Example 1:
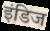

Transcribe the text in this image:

इंडिज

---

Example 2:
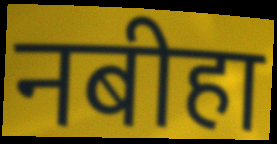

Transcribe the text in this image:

नबीहा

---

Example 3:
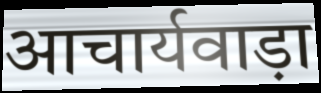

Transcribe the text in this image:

आचार्यवाड़ा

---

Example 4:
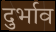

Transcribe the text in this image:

दुर्भाव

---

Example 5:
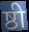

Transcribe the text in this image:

ष्ठी